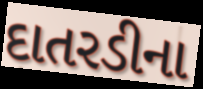
દાતરડીના